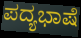
ಪದ್ಯಭಾಷೆ